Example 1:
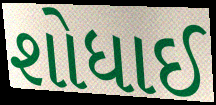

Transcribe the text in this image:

શોધાઈ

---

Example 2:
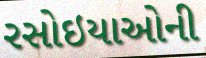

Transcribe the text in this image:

રસોઇયાઓની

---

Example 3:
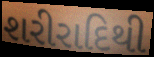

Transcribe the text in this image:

શરીરાદિથી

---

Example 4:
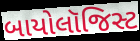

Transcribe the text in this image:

બાયોલૉજિસ્ટ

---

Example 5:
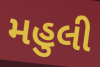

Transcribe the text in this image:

મહુલી